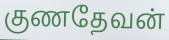
குணதேவன்